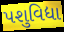
પશુવિદ્યા